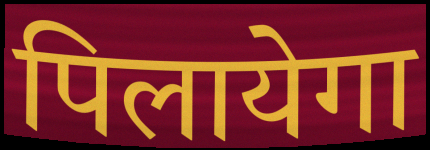
पिलायेगा